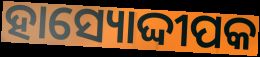
ହାସ୍ୟୋଦ୍ଦୀପକ